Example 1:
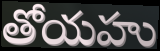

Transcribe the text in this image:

తోయహు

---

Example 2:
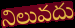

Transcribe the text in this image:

నిలువదు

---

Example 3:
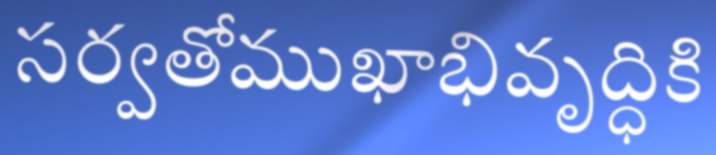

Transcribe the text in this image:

సర్వతోముఖాభివృద్ధికి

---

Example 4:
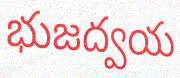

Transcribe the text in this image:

భుజద్వయ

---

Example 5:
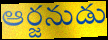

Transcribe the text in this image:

ఆర్జనుడు